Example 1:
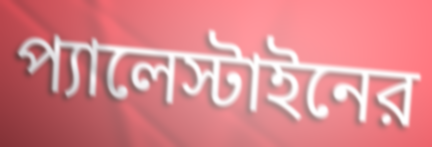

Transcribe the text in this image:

প্যালেস্টাইনের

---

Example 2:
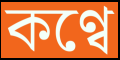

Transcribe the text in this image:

কণ্বে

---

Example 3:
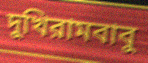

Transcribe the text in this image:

দুখিরামবাবু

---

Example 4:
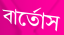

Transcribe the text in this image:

বার্তোস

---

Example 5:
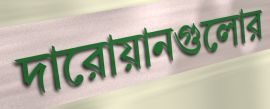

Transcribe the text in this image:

দারোয়ানগুলোর